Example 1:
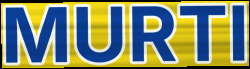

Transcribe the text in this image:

MURTI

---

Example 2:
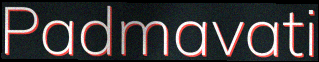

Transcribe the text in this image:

Padmavati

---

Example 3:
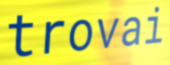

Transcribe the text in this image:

trovai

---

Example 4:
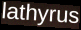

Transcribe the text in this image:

lathyrus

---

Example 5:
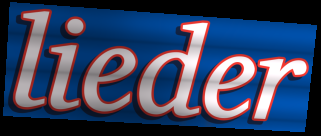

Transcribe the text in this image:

lieder